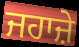
ਜਹਾਜ਼ੇ